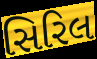
સિરિલ